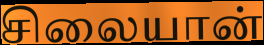
சிலையான்